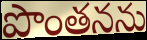
పొంతనను